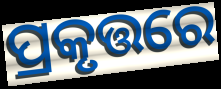
ପ୍ରକୃତ୍ତରେ